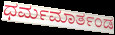
ಧರ್ಮಮಾರ್ತಂಡ